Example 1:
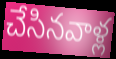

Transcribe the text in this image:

చేసినవాళ్ల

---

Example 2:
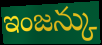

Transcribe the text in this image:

ఇంజన్కు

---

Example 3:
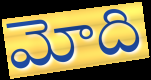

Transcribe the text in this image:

మోది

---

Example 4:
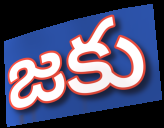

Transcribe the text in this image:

జకు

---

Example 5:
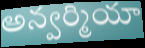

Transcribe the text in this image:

అన్వర్మియా